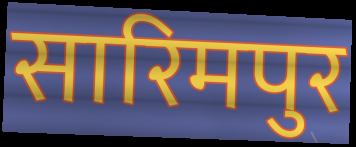
सारिमपुर